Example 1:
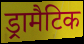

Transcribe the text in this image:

ड्रामैटिक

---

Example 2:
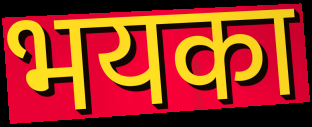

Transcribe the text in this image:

भयका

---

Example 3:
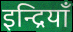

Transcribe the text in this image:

इन्द्रियाँ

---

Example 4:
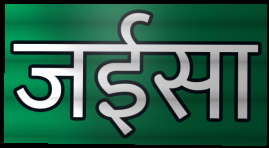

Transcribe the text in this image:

जईसा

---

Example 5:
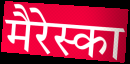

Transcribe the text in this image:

मैरेस्का